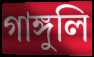
গাঙ্গুলি